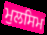
ਮੁਲਸਿਮ